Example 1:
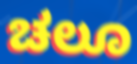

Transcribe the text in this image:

ಚಲೂ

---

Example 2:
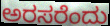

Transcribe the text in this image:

ಅರಸರೆಂದು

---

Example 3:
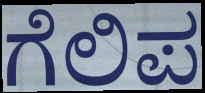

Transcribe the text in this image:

ಗೆಲಿಪ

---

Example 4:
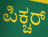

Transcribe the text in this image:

ಪಿಕ್ಚರ್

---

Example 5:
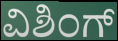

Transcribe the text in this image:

ವಿಶಿಂಗ್